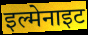
इल्मेनाइट